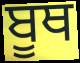
ਬੂਥ